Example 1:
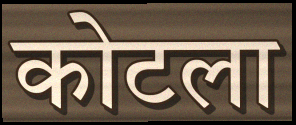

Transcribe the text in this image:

कोटला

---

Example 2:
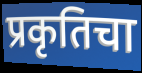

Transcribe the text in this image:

प्रकृतिचा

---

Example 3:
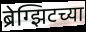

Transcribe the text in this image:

ब्रेग्झिटच्या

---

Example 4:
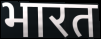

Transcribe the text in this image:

भारत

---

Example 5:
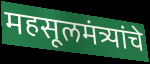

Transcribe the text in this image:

महसूलमंत्र्यांचे